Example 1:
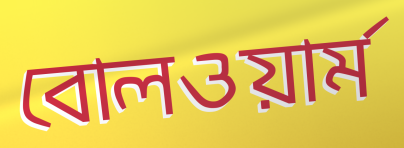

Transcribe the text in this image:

বোলওয়ার্ম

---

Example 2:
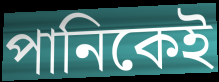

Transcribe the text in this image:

পানিকেই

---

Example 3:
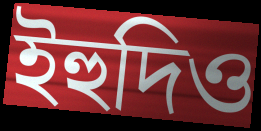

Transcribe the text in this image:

ইহুদিও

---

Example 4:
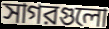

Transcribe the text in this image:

সাগরগুলো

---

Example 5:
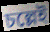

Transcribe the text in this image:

চল্লেই